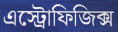
এস্ট্রোফিজিক্স